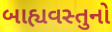
બાહ્યવસ્તુનો